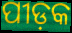
ପୀଡ଼କ